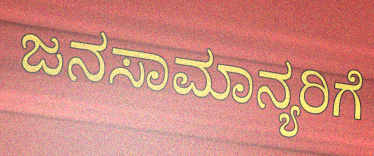
ಜನಸಾಮಾನ್ಯರಿಗೆ